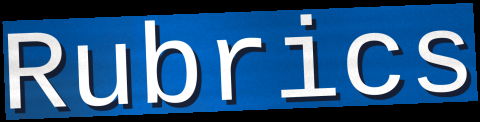
Rubrics